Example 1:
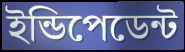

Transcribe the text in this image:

ইন্ডিপেডেন্ট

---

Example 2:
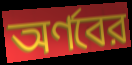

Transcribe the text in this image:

অর্ণবের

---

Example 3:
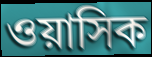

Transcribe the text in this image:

ওয়াসিক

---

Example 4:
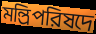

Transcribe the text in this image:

মন্ত্রিপরিষদে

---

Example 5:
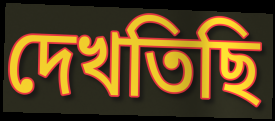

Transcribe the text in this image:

দেখতিছি